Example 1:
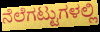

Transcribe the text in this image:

ನೆಲೆಗಟ್ಟುಗಳಲ್ಲಿ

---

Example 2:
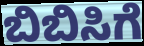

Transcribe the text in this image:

ಬಿಬಿಸಿಗೆ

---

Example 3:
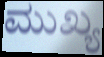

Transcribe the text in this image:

ಮುಖ್ಯ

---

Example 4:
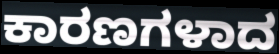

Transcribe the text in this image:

ಕಾರಣಗಳಾದ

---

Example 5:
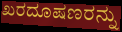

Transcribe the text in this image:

ಖರದೂಷಣರನ್ನು